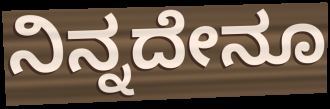
ನಿನ್ನದೇನೂ